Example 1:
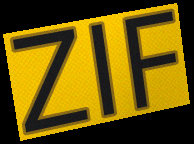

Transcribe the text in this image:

ZIF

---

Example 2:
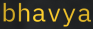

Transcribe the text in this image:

bhavya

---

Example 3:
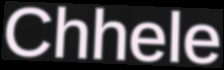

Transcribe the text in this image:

Chhele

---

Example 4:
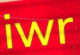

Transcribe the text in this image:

iwr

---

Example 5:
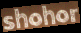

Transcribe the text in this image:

shohor